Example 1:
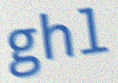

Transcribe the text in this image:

ghl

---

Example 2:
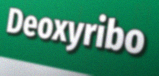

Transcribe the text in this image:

Deoxyribo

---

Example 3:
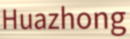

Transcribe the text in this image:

Huazhong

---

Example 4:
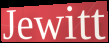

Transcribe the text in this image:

Jewitt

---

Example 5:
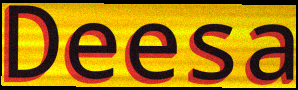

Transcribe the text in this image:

Deesa